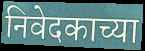
निवेदकाच्या